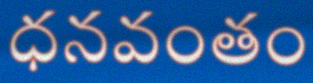
ధనవంతం